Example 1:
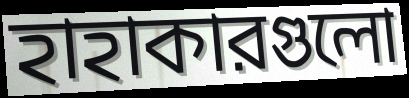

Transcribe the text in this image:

হাহাকারগুলো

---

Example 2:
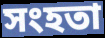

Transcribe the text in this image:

সংহতা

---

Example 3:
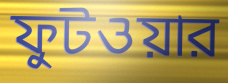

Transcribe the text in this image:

ফুটওয়ার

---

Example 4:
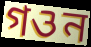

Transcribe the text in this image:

গওন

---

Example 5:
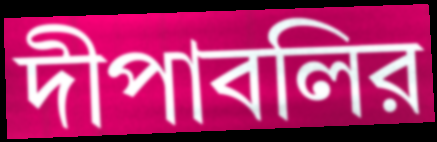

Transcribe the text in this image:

দীপাবলির